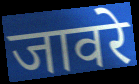
जावरे